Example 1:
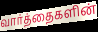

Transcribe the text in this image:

வார்த்தைகளின்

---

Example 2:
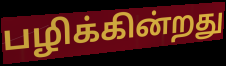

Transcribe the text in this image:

பழிக்கின்றது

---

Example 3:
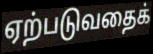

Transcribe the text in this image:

ஏற்படுவதைக்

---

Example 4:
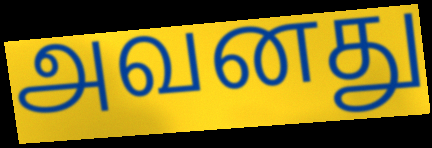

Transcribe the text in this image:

அவனது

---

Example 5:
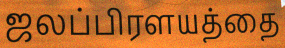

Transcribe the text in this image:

ஜலப்பிரளயத்தை